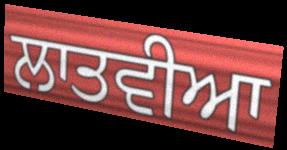
ਲਾਤਵੀਆ